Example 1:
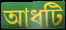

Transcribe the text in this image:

আধটি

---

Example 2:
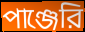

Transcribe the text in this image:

পাঞ্জেরি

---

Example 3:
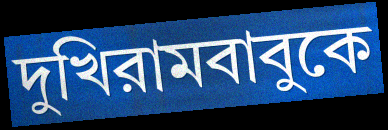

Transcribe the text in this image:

দুখিরামবাবুকে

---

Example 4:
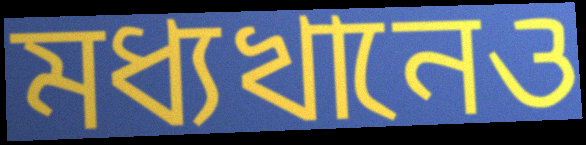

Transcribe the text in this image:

মধ্যখানেও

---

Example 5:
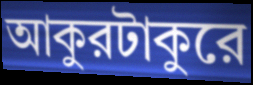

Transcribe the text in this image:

আকুরটাকুরে